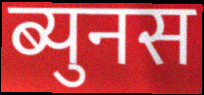
ब्युनस